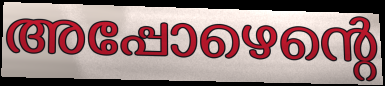
അപ്പോഴെന്റെ